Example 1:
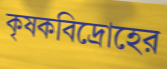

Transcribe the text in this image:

কৃষকবিদ্রোহের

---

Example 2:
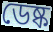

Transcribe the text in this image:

ডেষ্ক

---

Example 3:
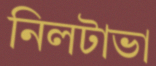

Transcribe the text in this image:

নিলটাভা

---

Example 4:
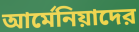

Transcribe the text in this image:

আর্মেনিয়াদের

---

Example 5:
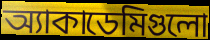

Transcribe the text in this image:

অ্যাকাডেমিগুলো